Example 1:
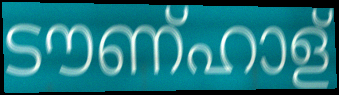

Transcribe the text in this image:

ടൗണ്ഹാള്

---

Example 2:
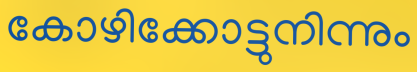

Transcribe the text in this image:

കോഴിക്കോട്ടുനിന്നും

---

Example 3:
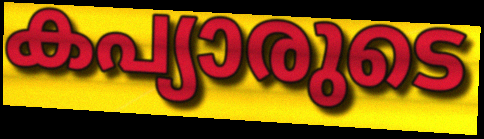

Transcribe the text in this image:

കപ്യാരുടെ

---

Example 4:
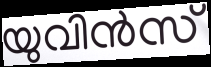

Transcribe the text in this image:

യുവിൻസ്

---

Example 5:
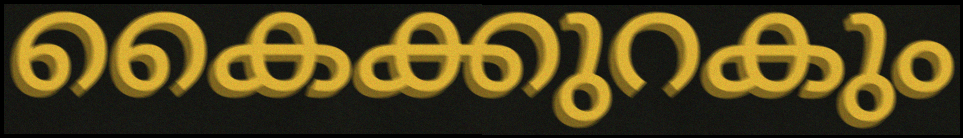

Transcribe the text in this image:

കൈക്കുറകും